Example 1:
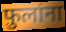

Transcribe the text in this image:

फ़ुलांना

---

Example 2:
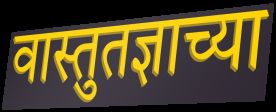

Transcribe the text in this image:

वास्तुतज्ञाच्या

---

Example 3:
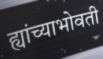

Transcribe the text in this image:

ह्यांच्याभोवती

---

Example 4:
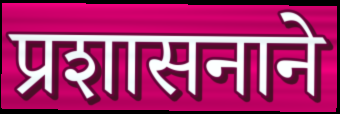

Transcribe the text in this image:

प्रशासनाने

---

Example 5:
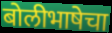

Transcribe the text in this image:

बोलीभाषेचा